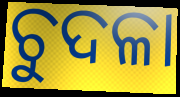
ଚୁଦଳା